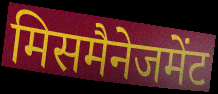
मिसमैनेजमेंट